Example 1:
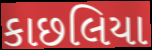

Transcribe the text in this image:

કાછલિયા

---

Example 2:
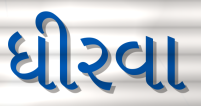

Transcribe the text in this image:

ધીરવા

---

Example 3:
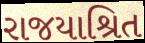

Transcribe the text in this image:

રાજયાશ્રિત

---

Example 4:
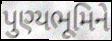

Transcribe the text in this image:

પુણ્યભૂમિને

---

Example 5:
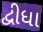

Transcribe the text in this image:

દ્વીધા